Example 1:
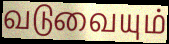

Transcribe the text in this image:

வடுவையும்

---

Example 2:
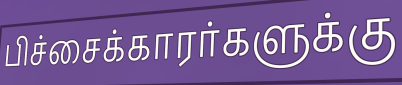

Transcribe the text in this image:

பிச்சைக்காரர்களுக்கு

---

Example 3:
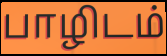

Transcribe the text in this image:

பாழிடம்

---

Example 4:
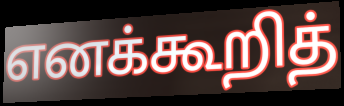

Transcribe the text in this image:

எனக்கூறித்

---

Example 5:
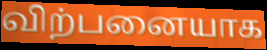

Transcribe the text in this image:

விற்பனையாக